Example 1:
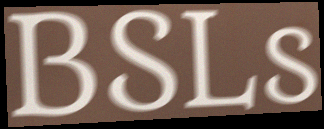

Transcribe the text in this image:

BSLs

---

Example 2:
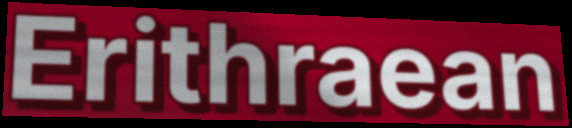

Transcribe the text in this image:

Erithraean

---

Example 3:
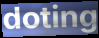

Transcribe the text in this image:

doting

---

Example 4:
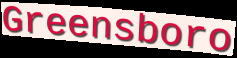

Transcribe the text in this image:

Greensboro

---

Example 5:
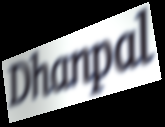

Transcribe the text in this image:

Dhanpal